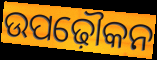
ଉପଢ଼ୌକନ